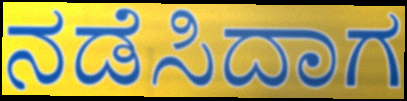
ನಡೆಸಿದಾಗ